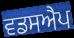
ਵਡਸਐਪ